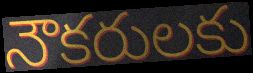
నౌకరులకు